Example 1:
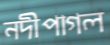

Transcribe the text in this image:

নদীপাগল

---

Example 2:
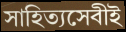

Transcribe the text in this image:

সাহিত্যসেবীই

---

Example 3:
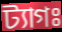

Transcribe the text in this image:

ট্যাগঃ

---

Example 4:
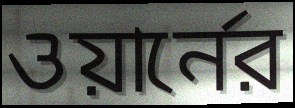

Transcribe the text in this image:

ওয়ার্নের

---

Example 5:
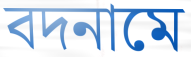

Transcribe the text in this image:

বদনামে